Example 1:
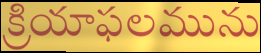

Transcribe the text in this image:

క్రియాఫలమును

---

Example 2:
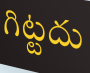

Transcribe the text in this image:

గిట్టదు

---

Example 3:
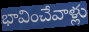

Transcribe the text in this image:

భావించేవాళ్లు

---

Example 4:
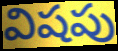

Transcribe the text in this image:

విషపు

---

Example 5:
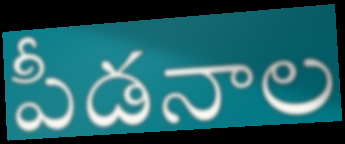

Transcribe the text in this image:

పీడనాల